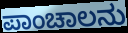
ಪಾಂಚಾಲನು